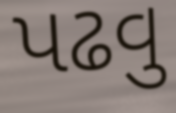
પઢવુ